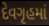
દેવગૃહમાં